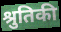
श्रुतिकी